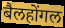
बैलहोंगल